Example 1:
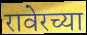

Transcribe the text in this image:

रावेरच्या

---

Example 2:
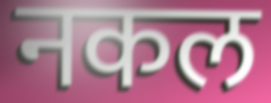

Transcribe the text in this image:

नकल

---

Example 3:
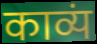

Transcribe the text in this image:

काव्यं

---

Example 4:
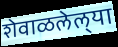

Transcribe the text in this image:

शेवाळलेल्या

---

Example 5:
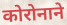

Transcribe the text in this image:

कोरोनाने